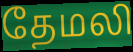
தேமலி